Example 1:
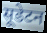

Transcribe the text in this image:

सूडेटन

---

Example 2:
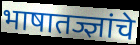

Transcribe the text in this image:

भाषातज्ज्ञांचे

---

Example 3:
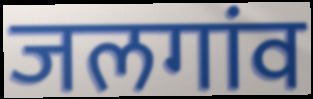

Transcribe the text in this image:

जलगांव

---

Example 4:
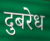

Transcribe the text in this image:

दुबरेध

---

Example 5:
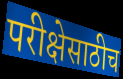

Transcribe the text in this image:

परीक्षेसाठीच